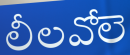
లీలవోలె